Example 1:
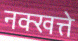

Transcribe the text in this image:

नक्खत्ते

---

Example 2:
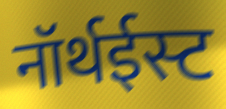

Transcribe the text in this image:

नॉर्थईस्‍ट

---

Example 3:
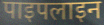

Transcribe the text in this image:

पाइपलाइन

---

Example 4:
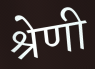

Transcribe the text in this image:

श्रेणी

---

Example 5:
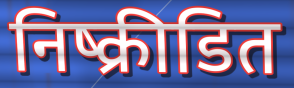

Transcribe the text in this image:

निष्क्रीडित